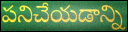
పనిచేయడాన్ని